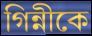
গিন্নীকে